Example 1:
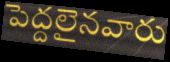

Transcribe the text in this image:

పెద్దలైనవారు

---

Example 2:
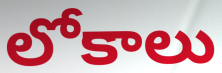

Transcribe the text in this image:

లోకాలు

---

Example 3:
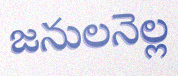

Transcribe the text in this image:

జనులనెల్ల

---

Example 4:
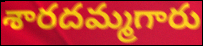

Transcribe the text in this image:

శారదమ్మగారు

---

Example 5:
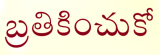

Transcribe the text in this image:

బ్రతికించుకో